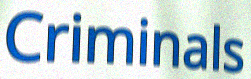
Criminals